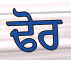
ਢੋਰ